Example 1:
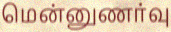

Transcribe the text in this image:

மென்னுணர்வு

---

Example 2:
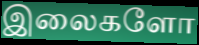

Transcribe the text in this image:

இலைகளோ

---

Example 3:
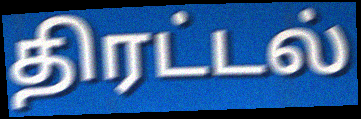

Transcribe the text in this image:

திரட்டல்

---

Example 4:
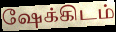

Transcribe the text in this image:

ஷேக்கிடம்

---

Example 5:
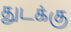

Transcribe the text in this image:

துடக்கு